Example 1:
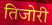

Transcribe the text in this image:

तिजोरी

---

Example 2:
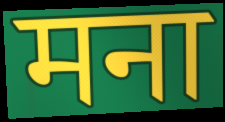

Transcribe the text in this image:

मना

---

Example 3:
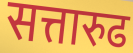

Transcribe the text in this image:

सत्तारुढ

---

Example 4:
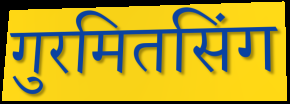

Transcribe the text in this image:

गुरमितसिंग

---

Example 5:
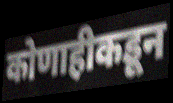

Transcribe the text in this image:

कोणाहीकडून